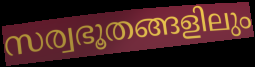
സര്വഭൂതങ്ങളിലും